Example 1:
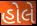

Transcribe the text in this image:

હોલે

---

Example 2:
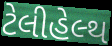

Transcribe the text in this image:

ટેલીહેલ્થ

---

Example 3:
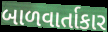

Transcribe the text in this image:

બાળવાર્તાકાર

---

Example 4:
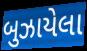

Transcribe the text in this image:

બુઝાયેલા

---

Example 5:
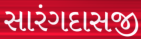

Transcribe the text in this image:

સારંગદાસજી